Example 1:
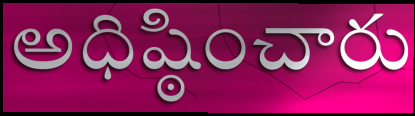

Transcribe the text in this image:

అధిష్ఠించారు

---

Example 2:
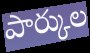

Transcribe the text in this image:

పార్కుల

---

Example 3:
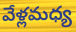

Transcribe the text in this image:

వేళ్లమధ్య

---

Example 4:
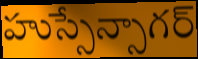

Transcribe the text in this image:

హుస్సేన్సాగర్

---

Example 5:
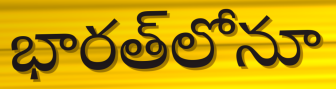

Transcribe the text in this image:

భారత్‌లోనూ